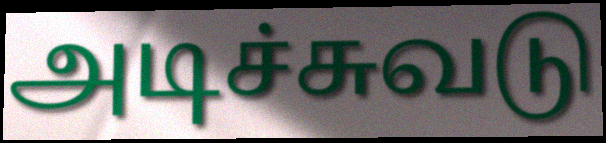
அடிச்சுவடு